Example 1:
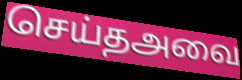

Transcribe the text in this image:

செய்தஅவை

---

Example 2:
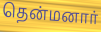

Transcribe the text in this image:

தென்மனார்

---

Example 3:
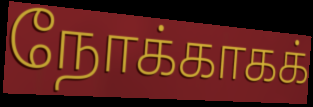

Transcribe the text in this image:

நோக்காகக்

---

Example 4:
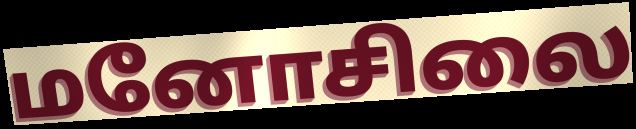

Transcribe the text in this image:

மனோசிலை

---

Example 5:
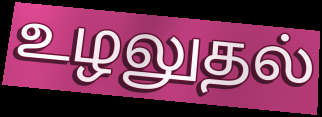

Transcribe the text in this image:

உழலுதல்